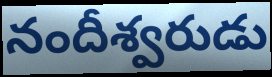
నందీశ్వరుడు